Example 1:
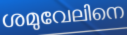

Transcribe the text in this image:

ശമുവേലിനെ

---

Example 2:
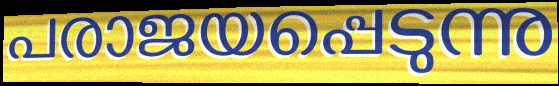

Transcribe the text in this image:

പരാജയപ്പെടുന്നു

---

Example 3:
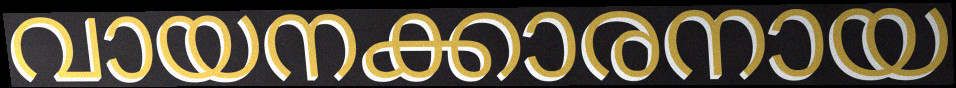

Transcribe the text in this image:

വായനക്കാരനായ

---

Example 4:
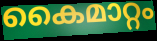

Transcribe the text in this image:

കൈമാറ്റം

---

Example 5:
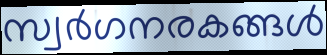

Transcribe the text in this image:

സ്വർഗനരകങ്ങൾ